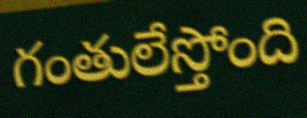
గంతులేస్తోంది